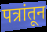
पत्रांतून